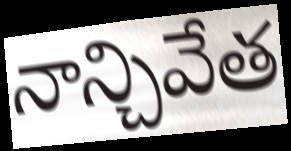
నాన్చివేత